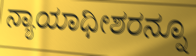
ನ್ಯಾಯಾಧೀಶರನ್ನೂ